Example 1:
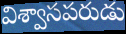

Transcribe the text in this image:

విశ్వాసపరుడు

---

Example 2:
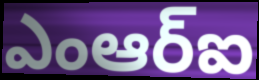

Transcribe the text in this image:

ఎంఆర్ఐ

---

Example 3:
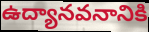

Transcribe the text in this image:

ఉద్యానవనానికి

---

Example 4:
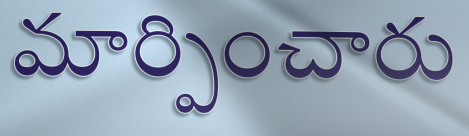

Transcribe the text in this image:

మార్పించారు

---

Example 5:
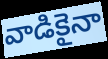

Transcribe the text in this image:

వాడికైనా